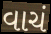
વાચં